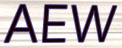
AEW